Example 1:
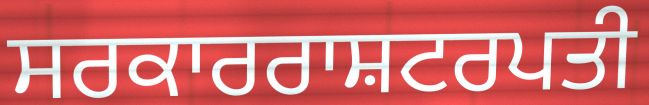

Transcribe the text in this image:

ਸਰਕਾਰਰਾਸ਼ਟਰਪਤੀ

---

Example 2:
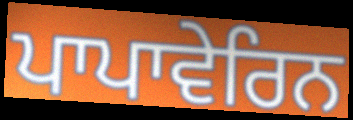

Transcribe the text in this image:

ਪਾਪਾਵੇਰਿਨ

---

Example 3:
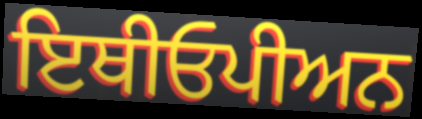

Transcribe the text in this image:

ਇਥੀਓਪੀਅਨ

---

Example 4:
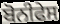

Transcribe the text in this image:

ਬੋਨੀਫੇਸ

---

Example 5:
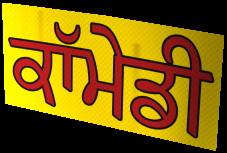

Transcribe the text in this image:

ਕਾੱਮੇਡੀ